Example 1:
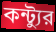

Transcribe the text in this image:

কন্ট্যুর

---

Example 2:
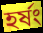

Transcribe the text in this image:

হর্ষং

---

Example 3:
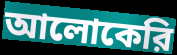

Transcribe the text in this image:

আলোকেরি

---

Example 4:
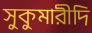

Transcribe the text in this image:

সুকুমারীদি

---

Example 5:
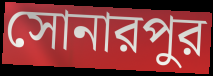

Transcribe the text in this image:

সোনারপুর